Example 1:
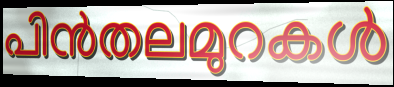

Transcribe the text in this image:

പിൻതലമുറകൾ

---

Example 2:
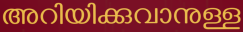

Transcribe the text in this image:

അറിയിക്കുവാനുള്ള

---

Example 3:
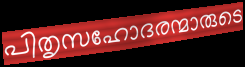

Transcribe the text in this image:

പിതൃസഹോദരന്മാരുടെ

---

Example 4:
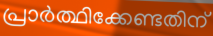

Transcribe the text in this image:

പ്രാർത്ഥിക്കേണ്ടതിന്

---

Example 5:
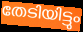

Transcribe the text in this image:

തേടിയിട്ടും